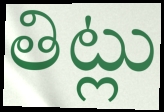
తిట్లు